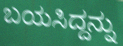
ಬಯಸಿದ್ದನ್ನು